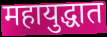
महायुद्धात